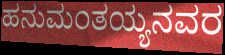
ಹನುಮಂತಯ್ಯನವರ